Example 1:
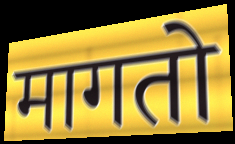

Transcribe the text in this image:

मागतो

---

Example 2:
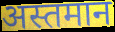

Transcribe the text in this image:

अस्तमान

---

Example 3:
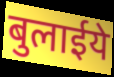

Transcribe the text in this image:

बुलाईये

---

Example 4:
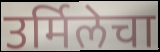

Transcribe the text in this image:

उर्मिलेचा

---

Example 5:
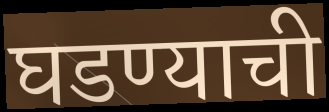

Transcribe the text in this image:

घडण्याची